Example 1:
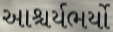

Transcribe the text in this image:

આશ્ચર્યભર્યો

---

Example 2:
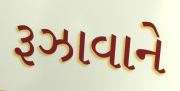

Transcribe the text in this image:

રૂઝાવાને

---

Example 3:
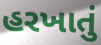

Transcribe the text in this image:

હરખાતું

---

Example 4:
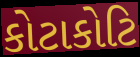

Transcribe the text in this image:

કોટાકોટિ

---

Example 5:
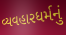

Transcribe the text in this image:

વ્યવહારધર્મનું